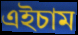
এইচাম